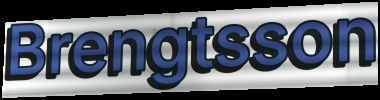
Brengtsson